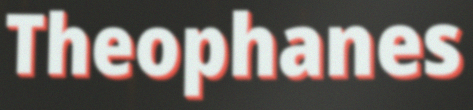
Theophanes